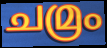
ചമ്രം